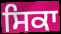
ਸਿਕਾ